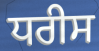
ਧਰੀਸ